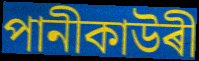
পানীকাউৰী